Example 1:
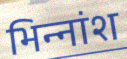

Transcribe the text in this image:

भिन्नांश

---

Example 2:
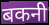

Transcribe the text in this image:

बकनी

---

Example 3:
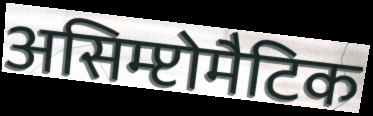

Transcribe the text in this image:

असिम्प्टोमैटिक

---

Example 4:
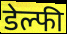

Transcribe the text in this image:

डेल्फी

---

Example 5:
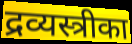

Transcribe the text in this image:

द्रव्यस्त्रीका